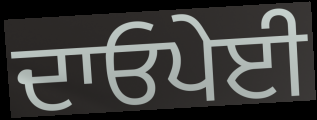
ਦਾਓਪੇਈ